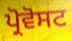
ਪ੍ਰੋਵੋਸਟ